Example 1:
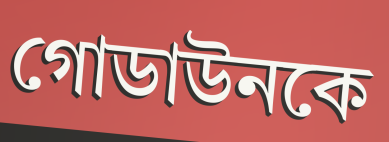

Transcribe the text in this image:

গোডাউনকে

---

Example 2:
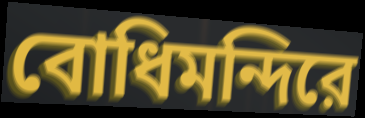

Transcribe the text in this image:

বোধিমন্দিরে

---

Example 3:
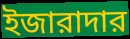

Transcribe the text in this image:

ইজারাদার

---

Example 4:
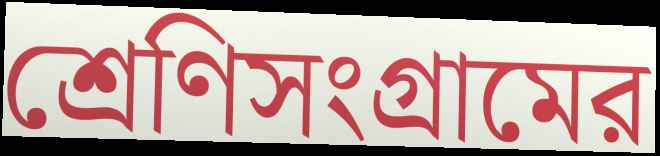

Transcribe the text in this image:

শ্রেণিসংগ্রামের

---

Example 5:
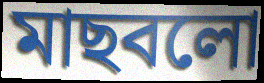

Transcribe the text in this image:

মাছবলো